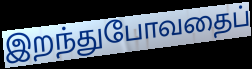
இறந்துபோவதைப்